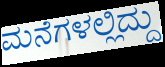
ಮನೆಗಳಲ್ಲಿದ್ದು